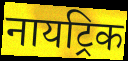
नायट्रिक